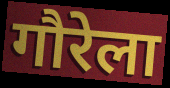
गौरेला